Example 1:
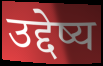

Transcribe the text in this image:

उद्देष्य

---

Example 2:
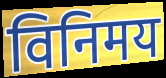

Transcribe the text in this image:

विनिमय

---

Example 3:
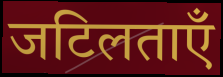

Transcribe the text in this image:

जटिलताएँ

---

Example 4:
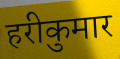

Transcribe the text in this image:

हरीकुमार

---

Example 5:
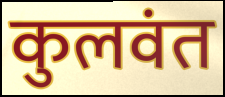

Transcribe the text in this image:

कुलवंत